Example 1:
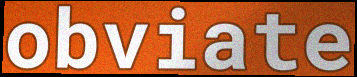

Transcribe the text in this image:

obviate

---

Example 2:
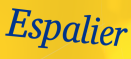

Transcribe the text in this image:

Espalier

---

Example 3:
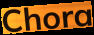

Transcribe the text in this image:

Chora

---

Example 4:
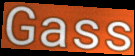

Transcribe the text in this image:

Gass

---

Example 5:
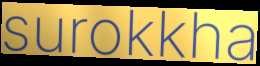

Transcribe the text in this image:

surokkha